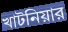
খাটনিয়ার